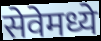
सेवेमध्ये